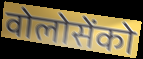
वोलोसेंको